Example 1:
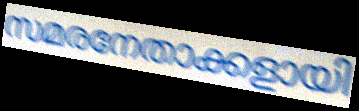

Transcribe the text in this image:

സമരനേതാക്കളായി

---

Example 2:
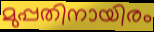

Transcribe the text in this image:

മുപ്പതിനായിരം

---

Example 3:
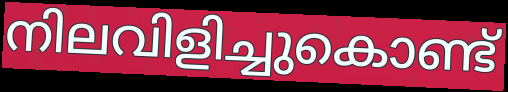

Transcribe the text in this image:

നിലവിളിച്ചുകൊണ്ട്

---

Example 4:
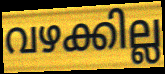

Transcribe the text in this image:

വഴക്കില്ല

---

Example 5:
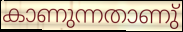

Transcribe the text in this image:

കാണുന്നതാണു്